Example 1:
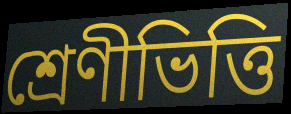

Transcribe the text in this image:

শ্রেণীভিত্তি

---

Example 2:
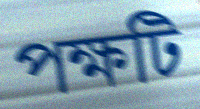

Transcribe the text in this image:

পক্ষটি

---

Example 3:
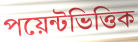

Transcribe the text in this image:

পয়েন্টভিত্তিক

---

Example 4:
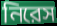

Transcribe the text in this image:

নিরেস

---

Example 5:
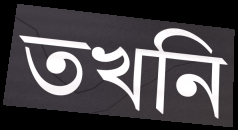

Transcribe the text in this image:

তখনি